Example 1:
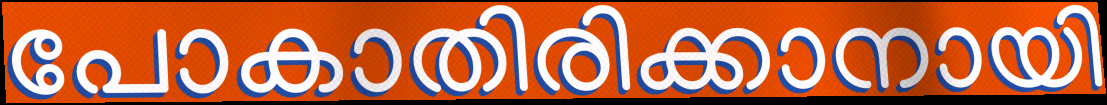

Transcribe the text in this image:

പോകാതിരിക്കാനായി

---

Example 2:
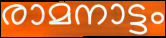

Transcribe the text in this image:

രാമനാട്ടം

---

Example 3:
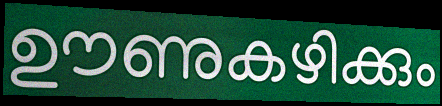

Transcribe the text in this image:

ഊണുകഴിക്കും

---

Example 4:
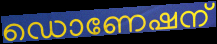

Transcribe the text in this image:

ഡൊണേഷന്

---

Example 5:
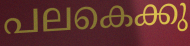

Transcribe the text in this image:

പലകെക്കു